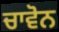
ਚਾਵੋਨ